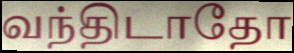
வந்திடாதோ